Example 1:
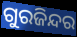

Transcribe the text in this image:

ଗୁରଜିନ୍ଦର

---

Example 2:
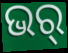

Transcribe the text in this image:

ଭର୍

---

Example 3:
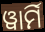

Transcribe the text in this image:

ୱାର୍ମି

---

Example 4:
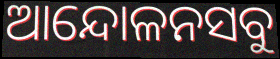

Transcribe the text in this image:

ଆନ୍ଦୋଳନସବୁ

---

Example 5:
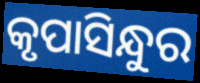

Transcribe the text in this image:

କୃପାସିନ୍ଧୁର